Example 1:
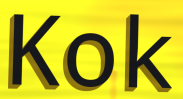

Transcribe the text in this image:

Kok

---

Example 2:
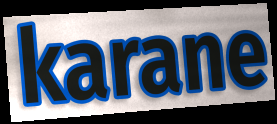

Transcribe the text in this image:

karane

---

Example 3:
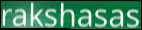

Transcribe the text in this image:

rakshasas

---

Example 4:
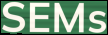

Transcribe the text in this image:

SEMs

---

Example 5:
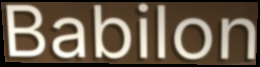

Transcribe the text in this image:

Babilon